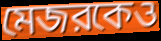
মেজরকেও